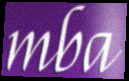
mba